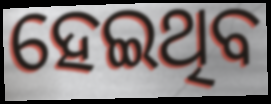
ହେଇଥିବ